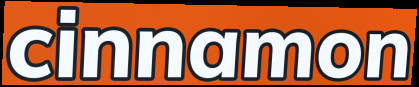
cinnamon